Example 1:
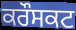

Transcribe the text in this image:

ਕਰੌਸਕਟ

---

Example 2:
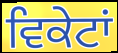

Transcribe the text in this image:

ਵਿਕੇਟਾਂ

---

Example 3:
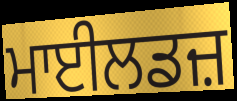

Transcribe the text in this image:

ਮਾਈਲਡਜ਼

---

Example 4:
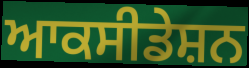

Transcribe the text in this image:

ਆਕਸੀਡੇਸ਼ਨ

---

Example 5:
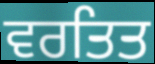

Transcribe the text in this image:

ਵਰਤਿਤ